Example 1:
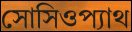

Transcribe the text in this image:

সোসিওপ্যাথ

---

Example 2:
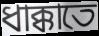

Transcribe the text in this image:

ধাক্কাতে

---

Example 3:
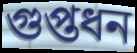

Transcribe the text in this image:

গুপ্তধন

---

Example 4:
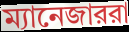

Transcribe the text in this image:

ম্যানেজাররা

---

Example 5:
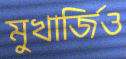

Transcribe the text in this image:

মুখার্জিও